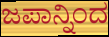
ಜಪಾನ್ನಿಂದ